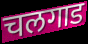
चलगाड